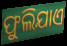
ଫୁଲିଯାଏ